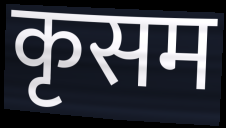
कृसम